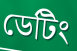
ডেটিং